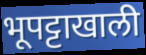
भूपट्टाखाली